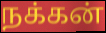
நக்கன்